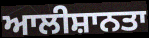
ਆਲੀਸ਼ਾਨਤਾ